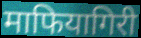
माफियागिरी